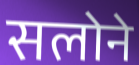
सलोने